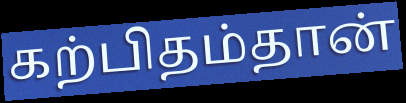
கற்பிதம்தான்